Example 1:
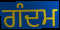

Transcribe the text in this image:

ਗੰਦਮ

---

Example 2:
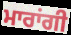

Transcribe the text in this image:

ਮਾਰਾਂਗੀ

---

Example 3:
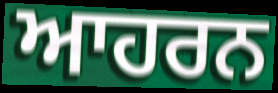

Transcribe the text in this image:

ਆਹਰਨ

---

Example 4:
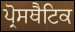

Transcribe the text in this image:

ਪ੍ਰੋਸਥੈਟਿਕ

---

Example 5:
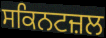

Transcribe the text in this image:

ਸਕਿਨਟਜ਼ਲ